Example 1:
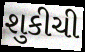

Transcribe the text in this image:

શુકીચી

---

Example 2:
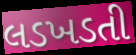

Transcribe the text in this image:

લડખડતી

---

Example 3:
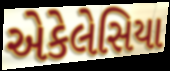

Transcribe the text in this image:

એકેલેસિયા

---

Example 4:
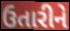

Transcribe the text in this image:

ઉતારીને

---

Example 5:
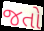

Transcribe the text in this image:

જતો